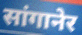
सांगानेर